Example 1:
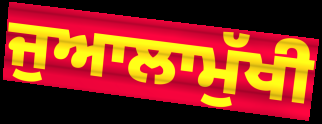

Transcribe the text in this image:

ਜੁਆਲਾਮੁੱਖੀ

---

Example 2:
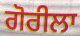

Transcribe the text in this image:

ਗੋਰੀਲਾ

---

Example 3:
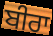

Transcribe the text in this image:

ਬੀਰਾ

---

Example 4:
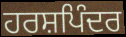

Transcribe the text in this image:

ਹਰਸ਼ਪਿੰਦਰ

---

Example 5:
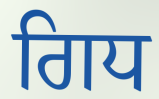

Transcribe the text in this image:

ਗਿਧ